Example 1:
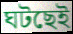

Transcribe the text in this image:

ঘটছেই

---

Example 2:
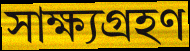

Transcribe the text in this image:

সাক্ষ্যগ্রহণ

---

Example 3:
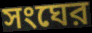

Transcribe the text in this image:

সংঘের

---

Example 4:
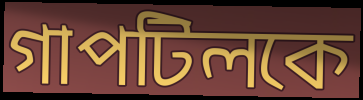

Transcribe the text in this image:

গাপটিলকে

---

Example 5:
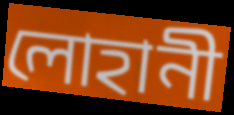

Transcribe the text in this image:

লোহানী